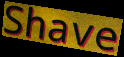
Shave